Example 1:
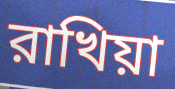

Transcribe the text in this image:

রাখিয়া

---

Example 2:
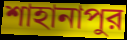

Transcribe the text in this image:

শাহানাপুর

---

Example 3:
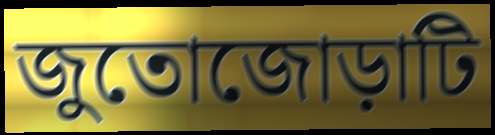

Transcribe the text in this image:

জুতোজোড়াটি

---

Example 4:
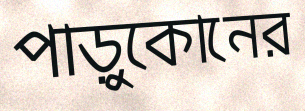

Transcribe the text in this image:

পাড়ুকোনের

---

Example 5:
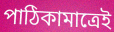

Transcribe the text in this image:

পাঠিকামাত্রেই